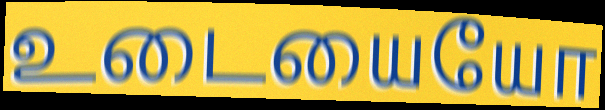
உடையையோ